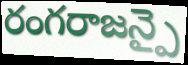
రంగరాజన్పై